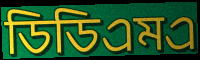
ডিডিএমএ